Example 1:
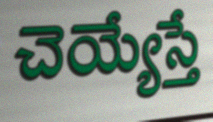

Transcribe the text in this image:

చెయ్యేస్తే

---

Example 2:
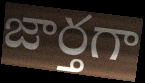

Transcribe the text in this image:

జార్తగా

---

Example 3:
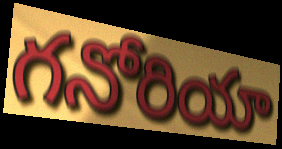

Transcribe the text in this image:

గనోరియా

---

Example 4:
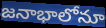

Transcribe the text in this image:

జనాభాలోనూ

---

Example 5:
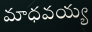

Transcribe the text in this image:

మాధవయ్య